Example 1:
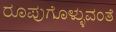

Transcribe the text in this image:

ರೂಪುಗೊಳ್ಳುವಂತೆ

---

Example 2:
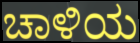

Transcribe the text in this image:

ಚಾಳಿಯ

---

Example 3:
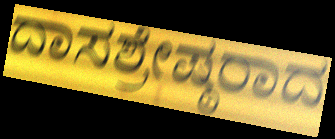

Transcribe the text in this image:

ದಾಸಶ್ರೇಷ್ಠರಾದ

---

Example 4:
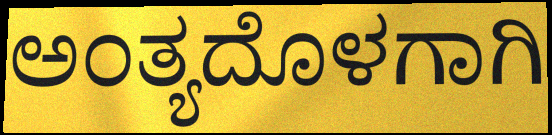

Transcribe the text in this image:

ಅಂತ್ಯದೊಳಗಾಗಿ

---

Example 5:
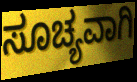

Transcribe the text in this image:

ಸೂಚ್ಯವಾಗಿ